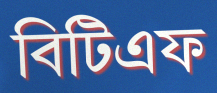
বিটিএফ